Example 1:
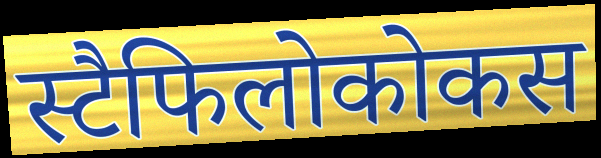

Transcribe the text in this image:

स्टैफिलोकोकस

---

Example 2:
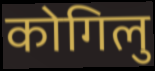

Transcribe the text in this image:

कोगिलु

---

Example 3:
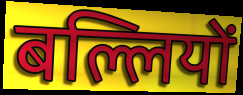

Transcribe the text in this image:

बल्लियों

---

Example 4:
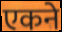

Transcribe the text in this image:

एकने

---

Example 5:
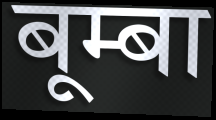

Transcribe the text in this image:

बूम्बा